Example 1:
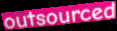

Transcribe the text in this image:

outsourced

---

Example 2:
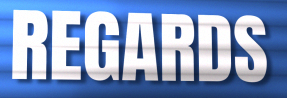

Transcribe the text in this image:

REGARDS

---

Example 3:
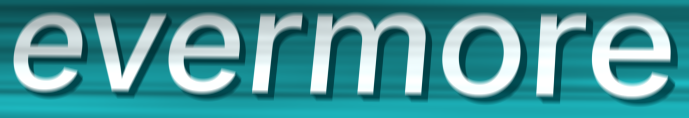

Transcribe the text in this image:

evermore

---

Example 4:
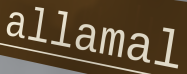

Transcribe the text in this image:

allamal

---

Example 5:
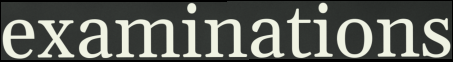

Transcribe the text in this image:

examinations